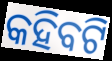
କହିବଟି